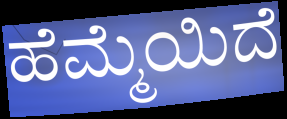
ಹೆಮ್ಮೆಯಿದೆ